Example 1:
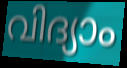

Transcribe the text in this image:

വിദ്യാം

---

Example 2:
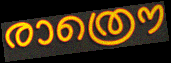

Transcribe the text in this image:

രാത്രൌ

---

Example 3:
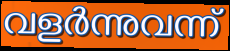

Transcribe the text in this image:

വളർന്നുവന്ന്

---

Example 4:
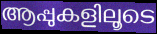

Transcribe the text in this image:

ആപ്പുകളിലൂടെ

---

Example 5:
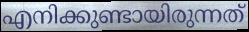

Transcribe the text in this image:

എനിക്കുണ്ടായിരുന്നത്